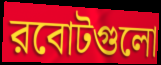
রবোটগুলো